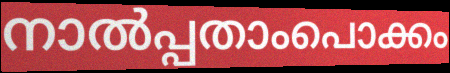
നാൽപ്പതാംപൊക്കം